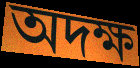
অদক্ষ